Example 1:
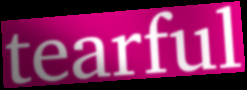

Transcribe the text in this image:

tearful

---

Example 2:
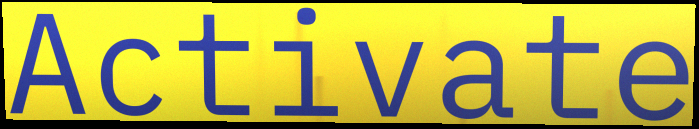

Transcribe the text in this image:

Activate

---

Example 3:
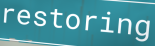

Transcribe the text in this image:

restoring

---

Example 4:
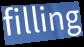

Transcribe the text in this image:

filling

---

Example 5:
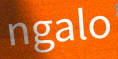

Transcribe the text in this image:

ngalo